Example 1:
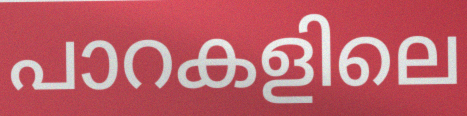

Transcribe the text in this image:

പാറകളിലെ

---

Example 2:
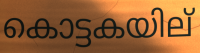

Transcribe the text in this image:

കൊട്ടകയില്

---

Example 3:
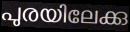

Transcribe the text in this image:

പുരയിലേക്കു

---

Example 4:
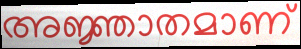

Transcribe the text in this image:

അജ്ഞാതമാണ്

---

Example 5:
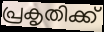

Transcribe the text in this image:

പ്രകൃതിക്ക്